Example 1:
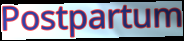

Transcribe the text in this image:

Postpartum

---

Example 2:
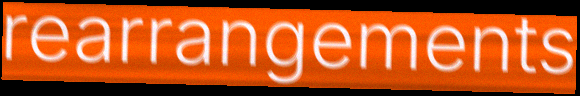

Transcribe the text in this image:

rearrangements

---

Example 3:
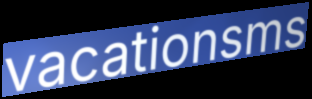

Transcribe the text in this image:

vacationsms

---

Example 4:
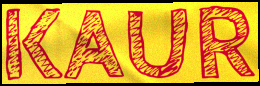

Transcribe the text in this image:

KAUR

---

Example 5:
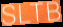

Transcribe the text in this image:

SLTB